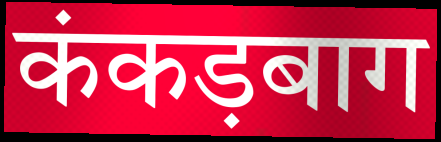
कंकड़बाग